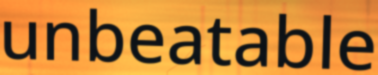
unbeatable